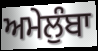
ਅਮੇਲੁੰਬਾ